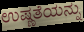
ಉಷ್ಣತೆಯನ್ನು